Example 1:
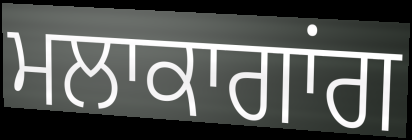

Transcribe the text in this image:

ਮਲਾਕਾਗਾਂਗ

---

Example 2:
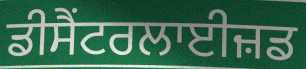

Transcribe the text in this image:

ਡੀਸੈਂਟਰਲਾਈਜ਼ਡ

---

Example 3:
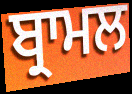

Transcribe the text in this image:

ਬ੍ਰਾਮਲ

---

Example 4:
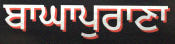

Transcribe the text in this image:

ਬਾਘਾਪੁਰਾਣਾ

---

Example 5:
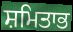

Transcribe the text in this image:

ਸ਼ਮਿਤਾਭ